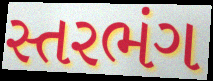
સ્તરભંગ